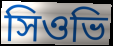
সিওভি